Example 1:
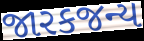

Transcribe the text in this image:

જારકજન્ય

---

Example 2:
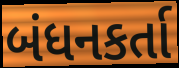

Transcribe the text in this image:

બંધનકર્તા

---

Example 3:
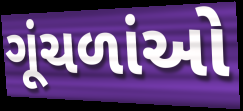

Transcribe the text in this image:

ગૂંચળાંઓ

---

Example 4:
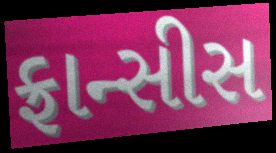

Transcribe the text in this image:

ફ્રાન્સીસ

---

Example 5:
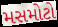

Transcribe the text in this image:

મસમોટો